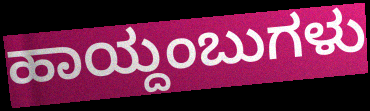
ಹಾಯ್ದಂಬುಗಳು